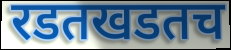
रडतखडतच